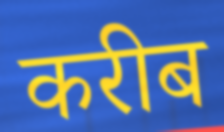
करीब